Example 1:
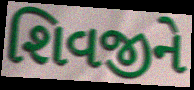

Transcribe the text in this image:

શિવજીને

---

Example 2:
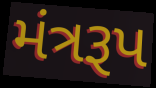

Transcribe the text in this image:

મંત્રરૂપ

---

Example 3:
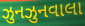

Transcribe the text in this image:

ઝુનઝુનવાલા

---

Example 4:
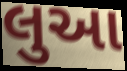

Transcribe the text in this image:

લુઆ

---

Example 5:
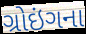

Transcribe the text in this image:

ગ્રોઇંગના